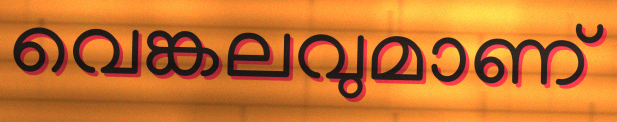
വെങ്കലവുമാണ്